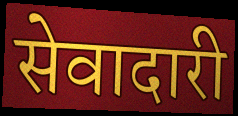
सेवादारी